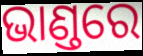
ଭାଣ୍ଡରେ